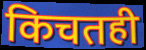
किचतही